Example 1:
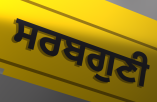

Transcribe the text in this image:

ਸਰਬਗੁਣੀ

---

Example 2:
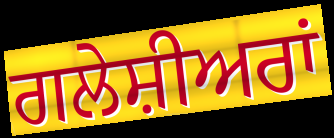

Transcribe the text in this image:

ਗਲੇਸ਼ੀਅਰਾਂ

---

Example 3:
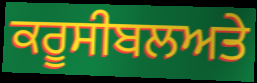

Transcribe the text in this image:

ਕਰੂਸੀਬਲਅਤੇ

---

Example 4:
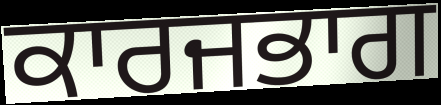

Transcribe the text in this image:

ਕਾਰਜਭਾਗ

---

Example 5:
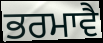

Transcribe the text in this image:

ਭਰਮਾਵੈ